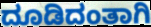
ದೂಡಿದಂತಾಗಿ